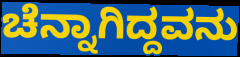
ಚೆನ್ನಾಗಿದ್ದವನು